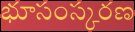
భూసంస్కరణ